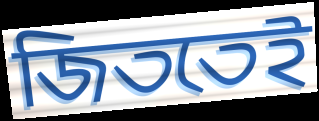
জিততেই